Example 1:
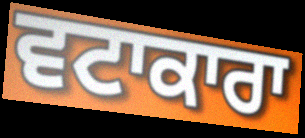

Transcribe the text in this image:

ਵਟਾਕਾਰਾ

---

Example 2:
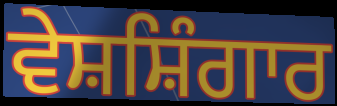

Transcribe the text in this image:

ਵੇਸ਼ਸ਼ਿੰਗਾਰ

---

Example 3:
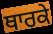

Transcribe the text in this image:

ਥਾਰਕੇ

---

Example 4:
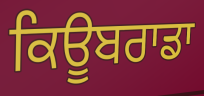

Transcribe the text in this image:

ਕਿਊਬਰਾਡਾ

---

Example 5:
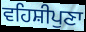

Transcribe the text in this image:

ਵਹਿਸ਼ੀਪੁਣਾ